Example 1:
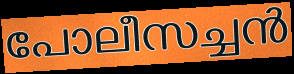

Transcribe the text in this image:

പോലീസച്ചൻ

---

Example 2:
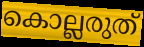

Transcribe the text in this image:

കൊല്ലരുത്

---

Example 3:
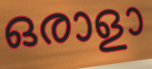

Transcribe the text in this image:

ഒരാളാ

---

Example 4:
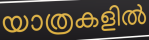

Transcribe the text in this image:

യാത്രകളിൽ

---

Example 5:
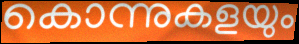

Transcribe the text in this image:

കൊന്നുകളയും